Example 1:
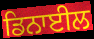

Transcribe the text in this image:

ਡਿਨਾਈਲ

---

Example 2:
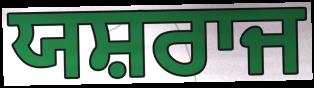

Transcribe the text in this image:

ਯਸ਼ਰਾਜ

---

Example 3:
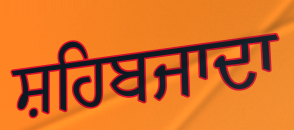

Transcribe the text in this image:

ਸ਼ਹਿਬਜਾਦਾ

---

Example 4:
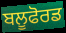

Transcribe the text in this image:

ਬਲੂਫੋਰਡ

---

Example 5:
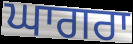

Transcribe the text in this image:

ਘਾਗਰਾ